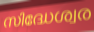
സിദ്ധേശ്വര